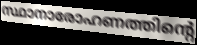
സ്ഥാനാരോഹണത്തിന്റെ